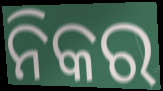
ନିକର